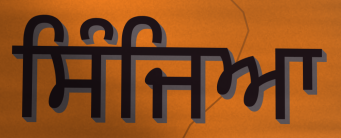
ਸਿੰਜਿਆ